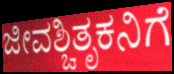
ಜೀವಶ್ಚಿತೃಕನಿಗೆ